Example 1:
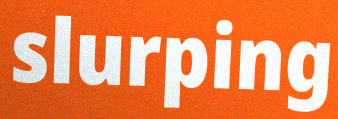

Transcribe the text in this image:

slurping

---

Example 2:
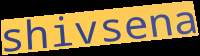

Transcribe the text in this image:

shivsena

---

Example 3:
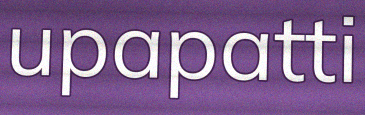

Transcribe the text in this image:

upapatti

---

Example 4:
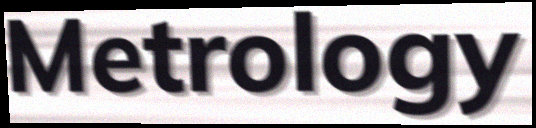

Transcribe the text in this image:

Metrology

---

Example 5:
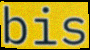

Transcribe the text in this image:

bis